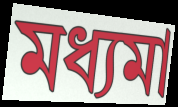
মধ্যমা